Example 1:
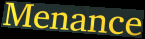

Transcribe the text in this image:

Menance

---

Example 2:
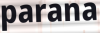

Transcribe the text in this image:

parana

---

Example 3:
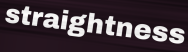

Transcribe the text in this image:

straightness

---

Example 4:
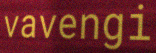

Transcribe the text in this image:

vavengi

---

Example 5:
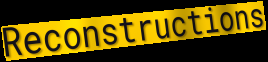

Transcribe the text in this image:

Reconstructions